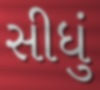
સીધું